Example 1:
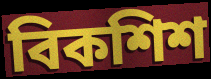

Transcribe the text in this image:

বিকশিশ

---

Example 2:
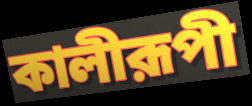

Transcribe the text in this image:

কালীরূপী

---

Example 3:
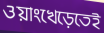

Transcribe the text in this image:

ওয়াংখেড়েতেই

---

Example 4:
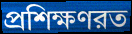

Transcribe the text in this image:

প্রশিক্ষণরত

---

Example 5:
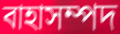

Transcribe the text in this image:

বাহাসম্পদ